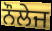
ਨੌਲੇਜ